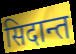
सिदान्त